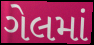
ગેલમાં